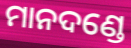
ମାନଦଣ୍ଡେ